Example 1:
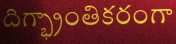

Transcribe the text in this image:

దిగ్భ్రాంతికరంగా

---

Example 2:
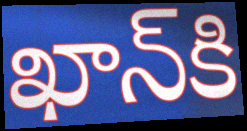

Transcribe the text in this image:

ఖాన్‌కి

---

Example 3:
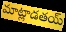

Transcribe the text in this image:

మాట్లాడతయ్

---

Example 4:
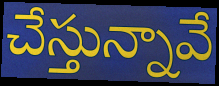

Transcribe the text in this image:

చేస్తున్నావే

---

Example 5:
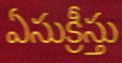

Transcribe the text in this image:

ఏసుక్రీస్తు